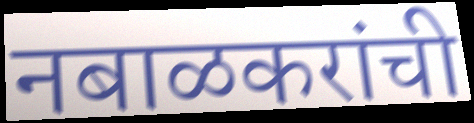
नबाळकरांची